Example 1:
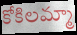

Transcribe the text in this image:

కోకిలమ్మా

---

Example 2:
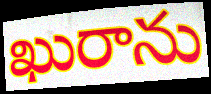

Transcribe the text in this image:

ఖురాను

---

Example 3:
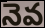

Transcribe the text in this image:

నెవ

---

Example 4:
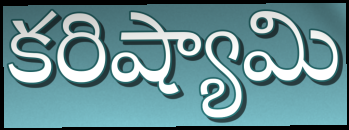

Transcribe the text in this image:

కరిష్యామి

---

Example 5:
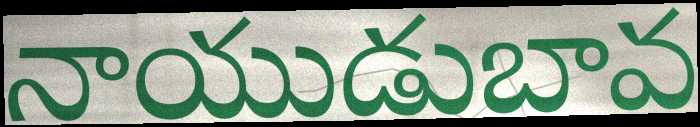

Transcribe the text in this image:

నాయుడుబావ